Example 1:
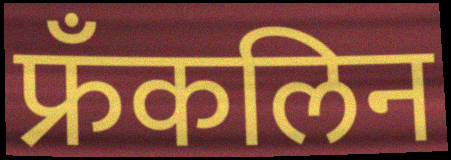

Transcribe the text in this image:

फ्रँकलिन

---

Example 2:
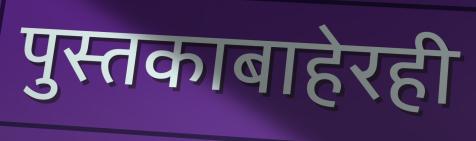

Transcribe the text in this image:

पुस्तकाबाहेरही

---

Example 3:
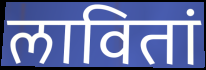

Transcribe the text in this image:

लावितां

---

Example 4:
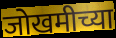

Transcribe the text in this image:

जोखमीच्या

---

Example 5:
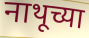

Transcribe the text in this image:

नाथूच्या